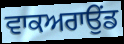
ਵਾਕਅਰਾਉਂਡ